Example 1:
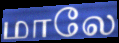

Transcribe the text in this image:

மாலே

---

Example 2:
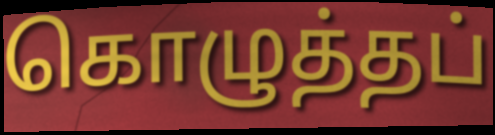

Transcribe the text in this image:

கொழுத்தப்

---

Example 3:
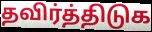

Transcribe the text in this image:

தவிர்த்திடுக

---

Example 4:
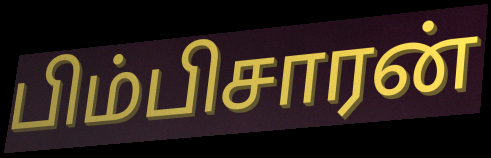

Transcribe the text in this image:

பிம்பிசாரன்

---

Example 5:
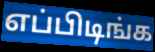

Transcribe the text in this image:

எப்பிடிங்க